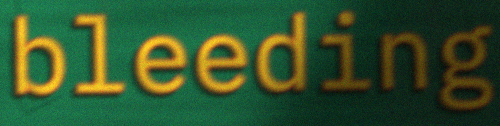
bleeding